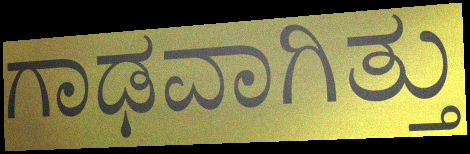
ಗಾಢವಾಗಿತ್ತು